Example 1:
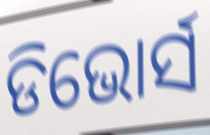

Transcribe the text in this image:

ଡିଭୋର୍ସ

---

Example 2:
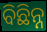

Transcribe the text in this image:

ବିଛିନ୍ନ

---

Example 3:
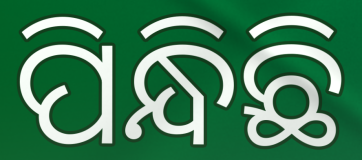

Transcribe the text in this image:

ପିନ୍ଧିଛି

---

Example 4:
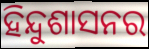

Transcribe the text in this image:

ହିନ୍ଦୁଶାସନର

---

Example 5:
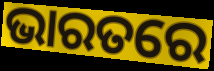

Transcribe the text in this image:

ଭାରତରେ